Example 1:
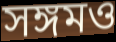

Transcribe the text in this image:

সঙ্গমও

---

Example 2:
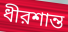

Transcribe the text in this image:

ধীরশান্ত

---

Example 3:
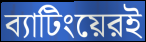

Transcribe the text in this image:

ব্যাটিংয়েরই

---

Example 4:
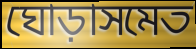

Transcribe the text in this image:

ঘোড়াসমেত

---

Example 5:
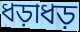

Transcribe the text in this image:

ধড়াধড়